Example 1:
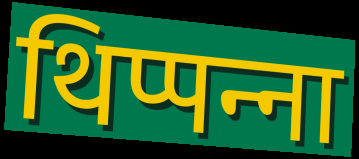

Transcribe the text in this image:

थिप्पन्ना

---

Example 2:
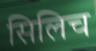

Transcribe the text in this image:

सिलिच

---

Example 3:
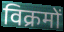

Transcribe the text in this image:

विक्रमों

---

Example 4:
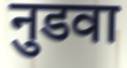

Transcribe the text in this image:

नुडवा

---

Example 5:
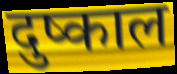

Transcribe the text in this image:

दुष्काल